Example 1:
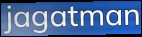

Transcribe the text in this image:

jagatman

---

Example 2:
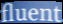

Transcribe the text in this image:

fluent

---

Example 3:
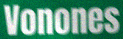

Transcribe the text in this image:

Vonones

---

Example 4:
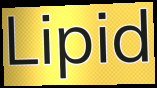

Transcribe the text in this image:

Lipid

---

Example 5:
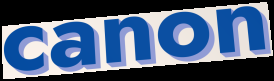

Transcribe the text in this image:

canon